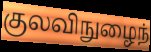
குலவிநுழைந்